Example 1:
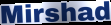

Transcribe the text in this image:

Mirshad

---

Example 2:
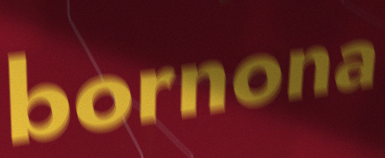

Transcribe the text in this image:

bornona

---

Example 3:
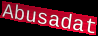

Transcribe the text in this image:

Abusadat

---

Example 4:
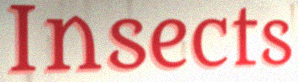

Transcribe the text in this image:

Insects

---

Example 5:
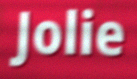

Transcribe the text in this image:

Jolie